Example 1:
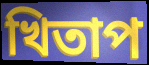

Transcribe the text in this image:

খিতাপ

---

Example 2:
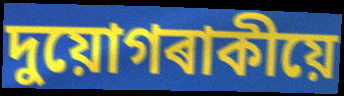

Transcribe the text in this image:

দুয়োগৰাকীয়ে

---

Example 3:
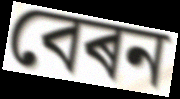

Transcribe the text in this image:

বেৰন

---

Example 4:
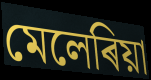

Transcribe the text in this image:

মেলেৰিয়া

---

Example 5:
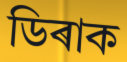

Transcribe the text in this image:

ডিৰাক